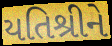
યતિશ્રીને